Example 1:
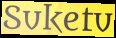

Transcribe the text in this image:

Suketu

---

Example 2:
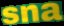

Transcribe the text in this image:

sna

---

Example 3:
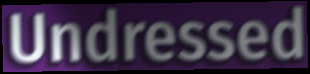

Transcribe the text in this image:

Undressed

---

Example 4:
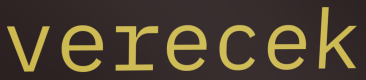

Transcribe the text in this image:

verecek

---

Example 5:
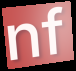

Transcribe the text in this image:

nf